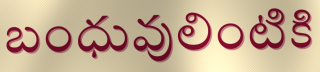
బంధువులింటికి